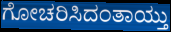
ಗೋಚರಿಸಿದಂತಾಯ್ತು